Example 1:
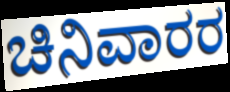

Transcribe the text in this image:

ಚಿನಿವಾರರ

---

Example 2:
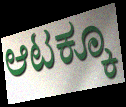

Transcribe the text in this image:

ಆಟಕ್ಕೂ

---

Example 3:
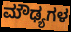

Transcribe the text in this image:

ಮೌಢ್ಯಗಳ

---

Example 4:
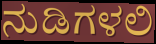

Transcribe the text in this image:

ನುಡಿಗಳಲಿ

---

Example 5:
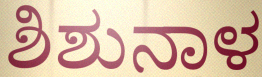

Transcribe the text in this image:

ಶಿಶುನಾಳ